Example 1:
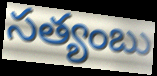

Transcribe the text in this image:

సత్యంబు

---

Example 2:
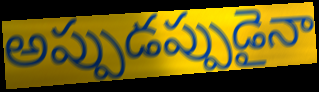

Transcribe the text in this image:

అప్పుడప్పుడైనా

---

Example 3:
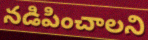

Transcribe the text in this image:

నడిపించాలని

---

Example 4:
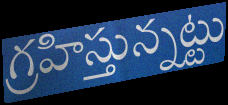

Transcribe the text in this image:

గ్రహిస్తున్నట్టు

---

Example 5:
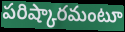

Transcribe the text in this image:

పరిష్కారమంటూ